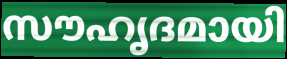
സൗഹൃദമായി